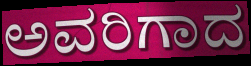
ಅವರಿಗಾದ